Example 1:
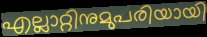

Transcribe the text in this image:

എല്ലാറ്റിനുമുപരിയായി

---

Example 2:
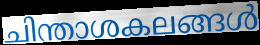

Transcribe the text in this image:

ചിന്താശകലങ്ങൾ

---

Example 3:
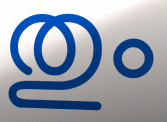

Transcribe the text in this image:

തും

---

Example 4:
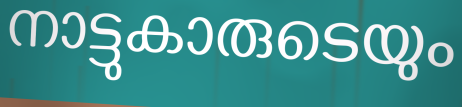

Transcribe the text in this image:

നാട്ടുകാരുടെയും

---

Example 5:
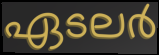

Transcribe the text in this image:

ഏടലർ